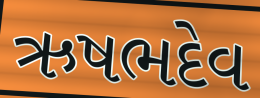
ઋષભદેવ